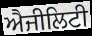
ਐਜੀਲਿਟੀ